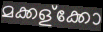
മക്കള്ക്കോ